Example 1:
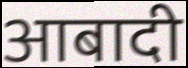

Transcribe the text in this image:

आबादी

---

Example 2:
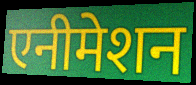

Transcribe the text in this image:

एनीमेशन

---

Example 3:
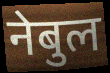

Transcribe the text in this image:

नेबुल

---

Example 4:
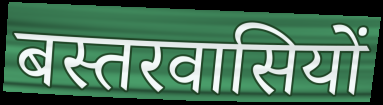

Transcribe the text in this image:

बस्तरवासियों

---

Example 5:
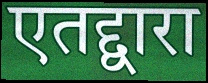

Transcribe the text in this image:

एतद्द्वारा